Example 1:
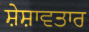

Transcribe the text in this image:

ਸ਼ੇਸ਼ਾਵਤਾਰ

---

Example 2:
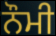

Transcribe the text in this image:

ਨੌਮੀ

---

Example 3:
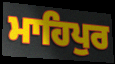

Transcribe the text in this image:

ਮਾਹਿਪੁਰ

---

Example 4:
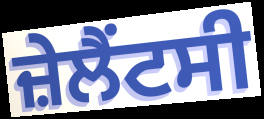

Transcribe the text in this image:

ਜ਼ੇਲੈਂਟਸੀ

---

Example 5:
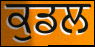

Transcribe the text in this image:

ਕੁਡਲ